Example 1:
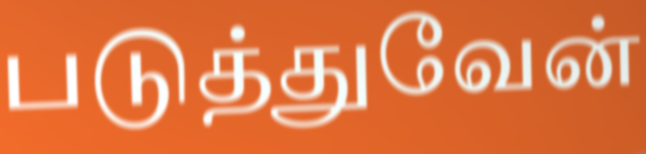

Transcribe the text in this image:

படுத்துவேன்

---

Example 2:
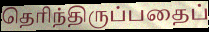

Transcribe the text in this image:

தெரிந்திருப்பதைப்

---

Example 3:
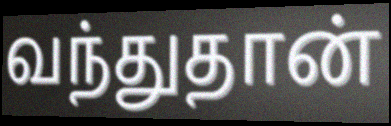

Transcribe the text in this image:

வந்துதான்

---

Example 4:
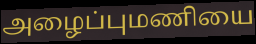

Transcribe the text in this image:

அழைப்புமணியை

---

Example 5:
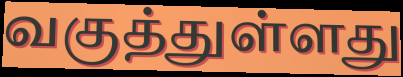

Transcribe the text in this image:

வகுத்துள்ளது